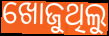
ଖୋଜୁଥିଲୁ